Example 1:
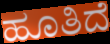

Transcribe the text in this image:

ಹೂತಿದೆ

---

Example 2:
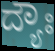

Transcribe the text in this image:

ದ್ಯೌಃ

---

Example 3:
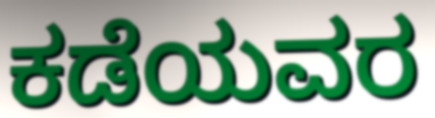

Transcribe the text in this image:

ಕಡೆಯವರ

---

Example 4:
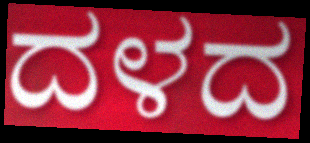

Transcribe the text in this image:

ದಳದ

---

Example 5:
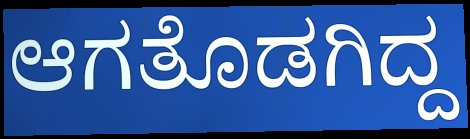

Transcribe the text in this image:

ಆಗತೊಡಗಿದ್ದ